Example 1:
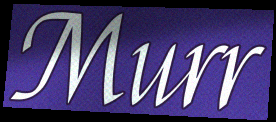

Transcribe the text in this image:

Murr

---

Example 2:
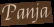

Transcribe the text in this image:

Panja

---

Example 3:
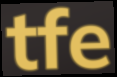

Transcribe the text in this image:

tfe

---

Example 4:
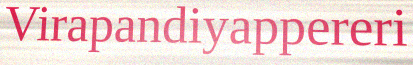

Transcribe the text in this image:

Virapandiyappereri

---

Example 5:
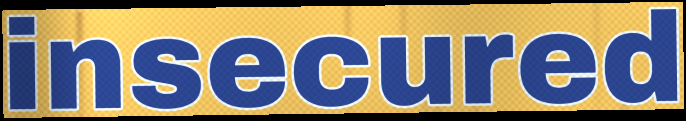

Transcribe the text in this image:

insecured